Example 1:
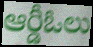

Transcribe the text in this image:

ఆర్డీఓలు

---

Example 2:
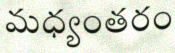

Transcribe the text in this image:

మధ్యంతరం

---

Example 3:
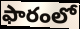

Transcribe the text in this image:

ఫారంలో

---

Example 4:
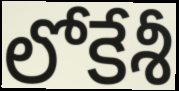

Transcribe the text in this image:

లోకేశీ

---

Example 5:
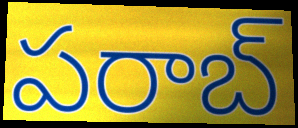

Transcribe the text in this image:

పరాబ్